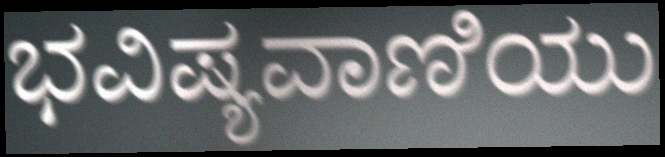
ಭವಿಷ್ಯವಾಣಿಯು